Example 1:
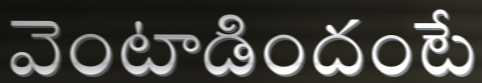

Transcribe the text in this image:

వెంటాడిందంటే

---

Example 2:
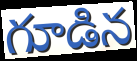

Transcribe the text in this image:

గూడిన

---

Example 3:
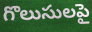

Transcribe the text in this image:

గొలుసులపై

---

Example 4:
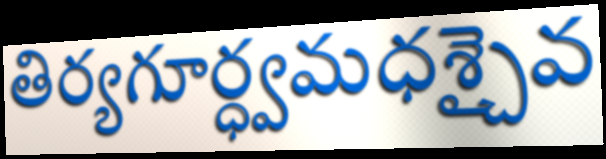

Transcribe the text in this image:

తిర్యగూర్ధ్వమధశ్చైవ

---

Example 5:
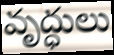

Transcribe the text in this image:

వృద్ధులు